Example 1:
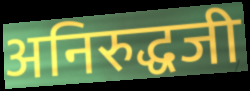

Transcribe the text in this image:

अनिरुद्धजी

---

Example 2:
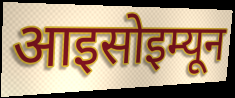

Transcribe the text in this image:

आइसोइम्यून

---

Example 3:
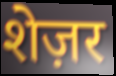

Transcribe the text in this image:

शेज़र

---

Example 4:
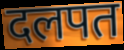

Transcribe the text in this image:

दलपत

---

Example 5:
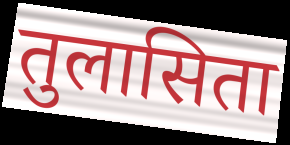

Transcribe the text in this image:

तुलासिता